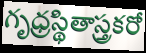
గృధ్రస్థితాస్త్రకరో